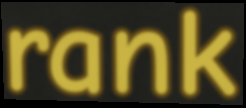
rank